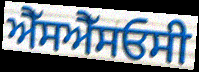
ਐੱਸਐੱਸਓਸੀ